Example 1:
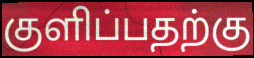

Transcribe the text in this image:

குளிப்பதற்கு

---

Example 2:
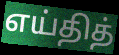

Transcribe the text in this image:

எய்தித்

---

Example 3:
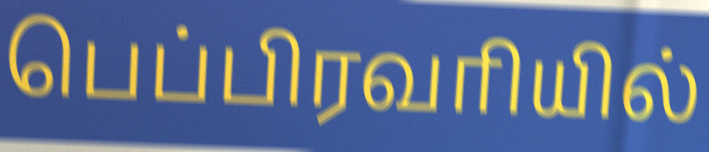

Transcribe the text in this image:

பெப்பிரவரியில்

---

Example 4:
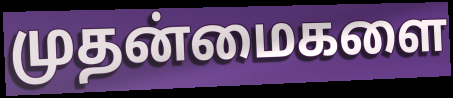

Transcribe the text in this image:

முதன்மைகளை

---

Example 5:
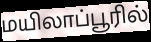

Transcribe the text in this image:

மயிலாப்பூரில்